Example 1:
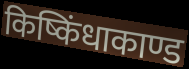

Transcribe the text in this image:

किष्किंधाकाण्ड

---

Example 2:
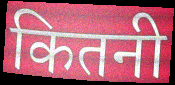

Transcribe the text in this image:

कितनी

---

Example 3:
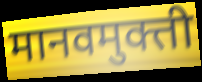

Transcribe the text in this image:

मानवमुक्ती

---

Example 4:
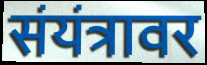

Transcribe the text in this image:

संयंत्रावर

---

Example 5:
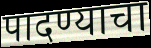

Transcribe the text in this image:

पादण्याचा